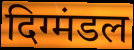
दिग्मंडल